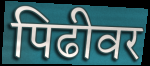
पिढीवर